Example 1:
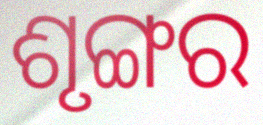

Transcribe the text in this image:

ଶୃଙ୍ଗର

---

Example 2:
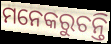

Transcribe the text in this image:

ମନେକରୁଚନ୍ତି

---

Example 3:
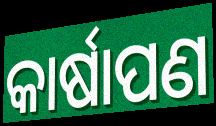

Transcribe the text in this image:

କାର୍ଷାପଣ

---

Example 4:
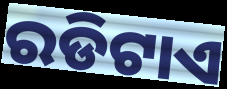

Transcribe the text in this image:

ରଡିଟାଏ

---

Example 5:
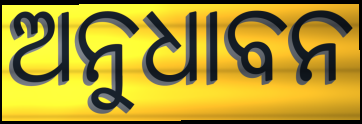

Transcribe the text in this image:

ଅନୁଧାବନ